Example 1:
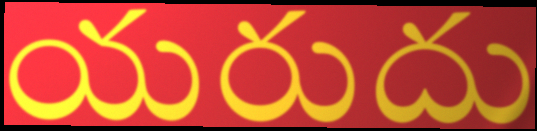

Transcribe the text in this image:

యరుదు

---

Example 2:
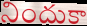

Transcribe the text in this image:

నిందుకా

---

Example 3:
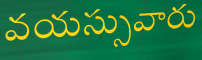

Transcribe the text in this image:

వయస్సువారు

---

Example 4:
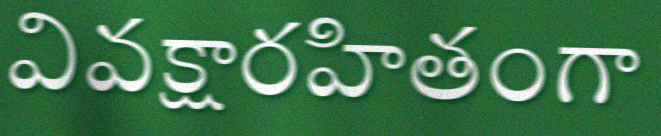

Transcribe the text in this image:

వివక్షారహితంగా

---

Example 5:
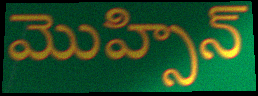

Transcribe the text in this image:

మొహ్సిన్